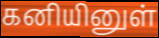
கனியினுள்